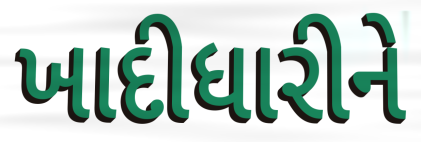
ખાદીધારીને